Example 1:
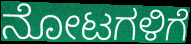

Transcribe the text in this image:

ನೋಟಗಳಿಗೆ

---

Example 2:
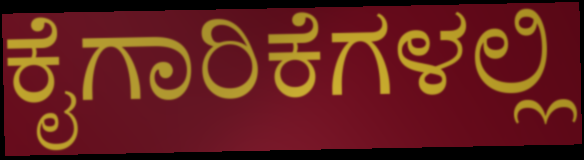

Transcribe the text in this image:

ಕೈಗಾರಿಕೆಗಳಲ್ಲಿ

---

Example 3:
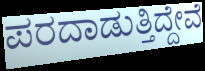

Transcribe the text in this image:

ಪರದಾಡುತ್ತಿದ್ದೇವೆ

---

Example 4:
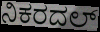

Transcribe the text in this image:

ನಿಕರದಲ್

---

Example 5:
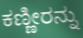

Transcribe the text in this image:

ಕಣ್ಣೀರನ್ನು